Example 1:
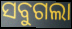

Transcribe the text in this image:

ସବୁଗଲା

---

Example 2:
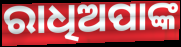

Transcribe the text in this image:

ରାଧିଅପାଙ୍କ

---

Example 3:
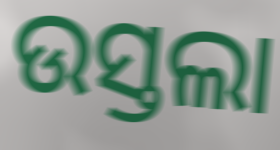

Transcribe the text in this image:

ଉସ୍ତଲା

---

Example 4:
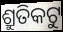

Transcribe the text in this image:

ଶ୍ରୁତିକଟୁ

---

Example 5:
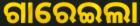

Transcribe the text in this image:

ଗାରେଇଲା